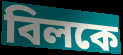
বিলকে